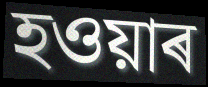
হওয়াৰ